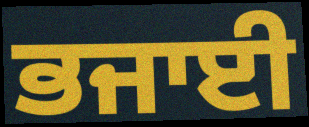
ਭਜਾਈ